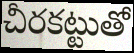
చీరకట్టుతో